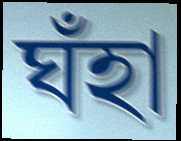
ঘঁহা